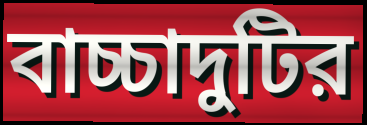
বাচ্চাদুটির